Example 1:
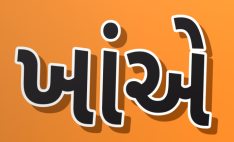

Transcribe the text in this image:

ખાંએ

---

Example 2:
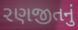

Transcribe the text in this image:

રણજીતનું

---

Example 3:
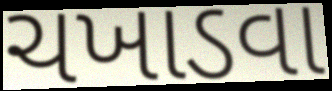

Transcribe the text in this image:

ચખાડવા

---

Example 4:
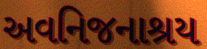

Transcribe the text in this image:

અવનિજનાશ્રય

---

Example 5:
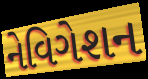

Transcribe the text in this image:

નેવિગેશન